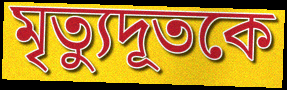
মৃত্যুদূতকে